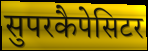
सुपरकैपेसिटर